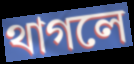
থাগলে